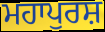
ਮਹਾਪੁਰਸ਼